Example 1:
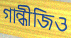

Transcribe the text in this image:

গান্ধীজিও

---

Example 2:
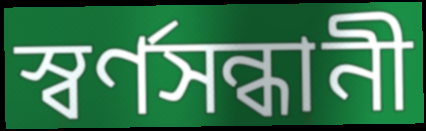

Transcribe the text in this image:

স্বর্ণসন্ধানী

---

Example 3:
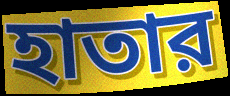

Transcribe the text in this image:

হাতার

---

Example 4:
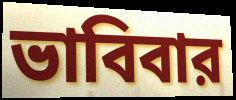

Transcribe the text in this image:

ভাবিবার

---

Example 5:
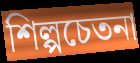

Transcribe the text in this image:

শিল্পচেতনা